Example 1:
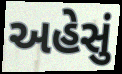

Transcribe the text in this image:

અહેસું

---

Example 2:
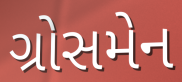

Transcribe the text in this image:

ગ્રોસમેન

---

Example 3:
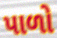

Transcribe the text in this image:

પાળો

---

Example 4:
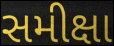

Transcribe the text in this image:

સમીક્ષા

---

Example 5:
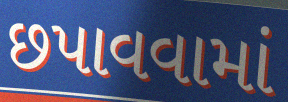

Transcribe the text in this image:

છપાવવામાં